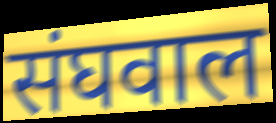
संघवाल